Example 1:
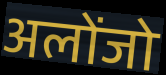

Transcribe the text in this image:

अलोंजो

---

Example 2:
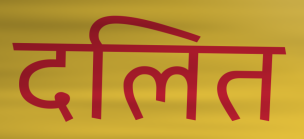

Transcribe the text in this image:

दलित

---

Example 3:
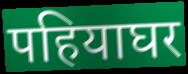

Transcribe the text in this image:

पहियाघर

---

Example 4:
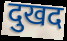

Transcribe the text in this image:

दुखद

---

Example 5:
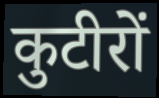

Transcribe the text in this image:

कुटीरों